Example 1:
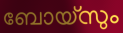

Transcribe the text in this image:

ബോയ്സും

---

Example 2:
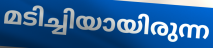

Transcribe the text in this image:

മടിച്ചിയായിരുന്ന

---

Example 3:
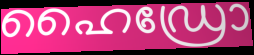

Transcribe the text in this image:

ഹൈഡ്രോ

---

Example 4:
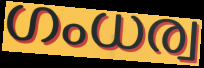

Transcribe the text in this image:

ഗംധര്വ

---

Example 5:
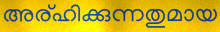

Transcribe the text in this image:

അര്ഹിക്കുന്നതുമായ